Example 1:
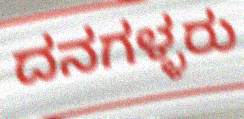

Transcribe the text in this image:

ದನಗಳ್ಳರು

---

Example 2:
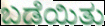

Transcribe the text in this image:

ಬಡೆಯಿತು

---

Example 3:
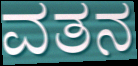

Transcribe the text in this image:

ವತನ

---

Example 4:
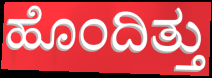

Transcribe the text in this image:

ಹೊಂದಿತ್ತು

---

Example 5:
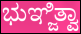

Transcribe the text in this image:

ಭುಞ್ಜಿತ್ವಾ